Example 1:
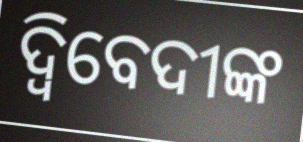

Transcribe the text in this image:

ଦ୍ବିବେଦୀଙ୍କ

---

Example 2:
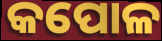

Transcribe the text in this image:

କପୋଳ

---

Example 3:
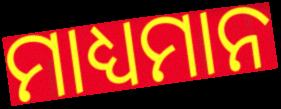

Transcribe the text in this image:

ମାଧ୍ଯମାନ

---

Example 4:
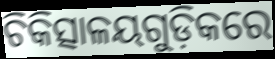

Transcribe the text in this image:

ଚିକିତ୍ସାଳୟଗୁଡ଼ିକରେ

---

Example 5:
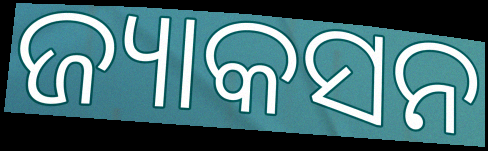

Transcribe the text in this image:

ଜ୍ୟାକସନ